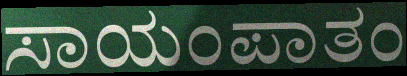
ಸಾಯಂಪಾತಂ